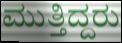
ಮುತ್ತಿದ್ದರು